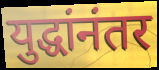
युद्धांनंतर